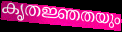
കൃതജ്ഞതയും